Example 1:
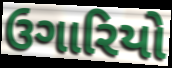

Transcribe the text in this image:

ઉગારિયો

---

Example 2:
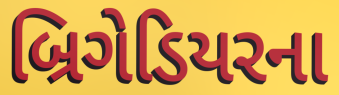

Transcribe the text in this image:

બ્રિગેડિયરના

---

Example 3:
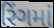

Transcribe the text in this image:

રિંગમાં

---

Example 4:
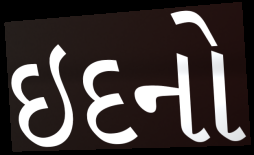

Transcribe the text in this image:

ઇદનો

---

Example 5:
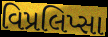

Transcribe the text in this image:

વિપ્રલિપ્સા